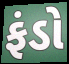
ફંડો